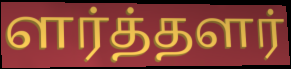
ளர்த்தளர்